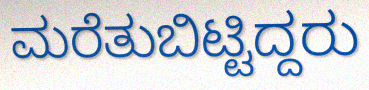
ಮರೆತುಬಿಟ್ಟಿದ್ದರು